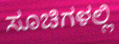
ಸೂಚಿಗಳಲ್ಲಿ